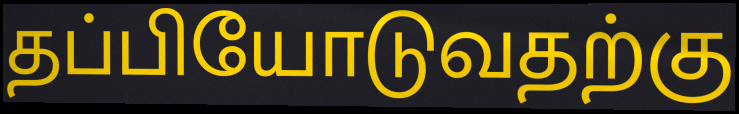
தப்பியோடுவதற்கு